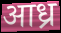
आध्र